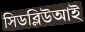
সিডব্লিউআই